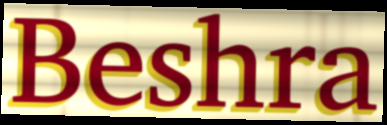
Beshra